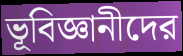
ভূবিজ্ঞানীদের